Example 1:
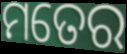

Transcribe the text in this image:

ମତେର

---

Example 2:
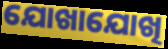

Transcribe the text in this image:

ଯୋଖାଯୋଖି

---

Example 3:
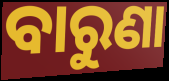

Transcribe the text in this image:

ବାରୁଣା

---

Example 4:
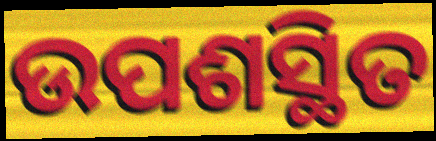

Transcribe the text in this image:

ଉପଶସ୍ଥିତ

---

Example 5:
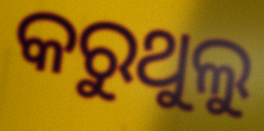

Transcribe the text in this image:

କରୁଥୁଲୁ